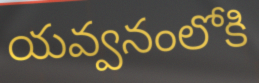
యవ్వనంలోకి